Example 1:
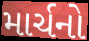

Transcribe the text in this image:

માર્ચનો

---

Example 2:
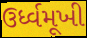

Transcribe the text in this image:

ઉર્ધ્વમૂખી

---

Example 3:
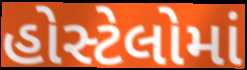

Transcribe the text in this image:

હોસ્ટેલોમાં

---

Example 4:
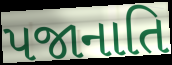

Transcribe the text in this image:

પજાનાતિ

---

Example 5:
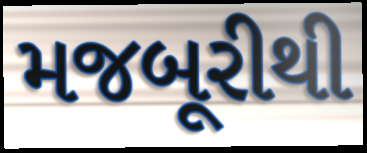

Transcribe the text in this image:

મજબૂરીથી